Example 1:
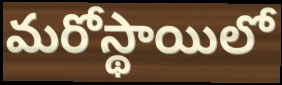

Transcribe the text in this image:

మరోస్థాయిలో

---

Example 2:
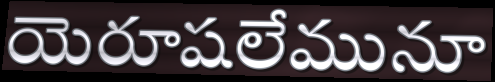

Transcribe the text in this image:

యెరూషలేమునూ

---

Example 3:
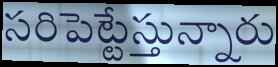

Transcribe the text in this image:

సరిపెట్టేస్తున్నారు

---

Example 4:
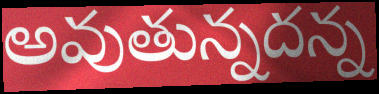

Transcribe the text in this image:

అవుతున్నదన్న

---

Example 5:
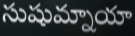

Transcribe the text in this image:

సుషుమ్నాయా